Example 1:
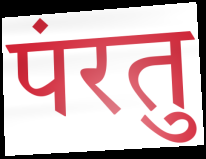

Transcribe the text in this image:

पंरतु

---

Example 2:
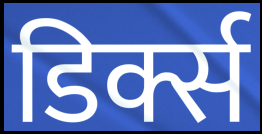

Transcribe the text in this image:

डिर्क्स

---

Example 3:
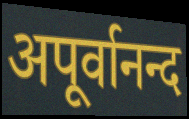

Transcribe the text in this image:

अपूर्वानन्द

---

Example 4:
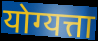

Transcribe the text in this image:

योग्यत्ता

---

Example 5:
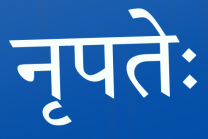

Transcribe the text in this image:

नृपतेः